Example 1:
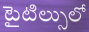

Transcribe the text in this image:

టైటిల్సులో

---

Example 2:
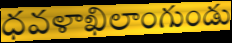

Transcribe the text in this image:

ధవళాఖిలాంగుండు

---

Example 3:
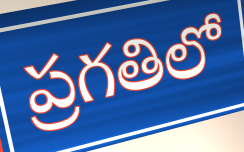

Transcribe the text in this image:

ప్రగతిలో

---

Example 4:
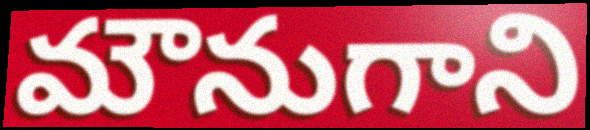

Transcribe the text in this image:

మౌనుగాని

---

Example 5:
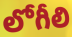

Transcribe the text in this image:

లోగీలి